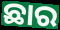
ଛାର